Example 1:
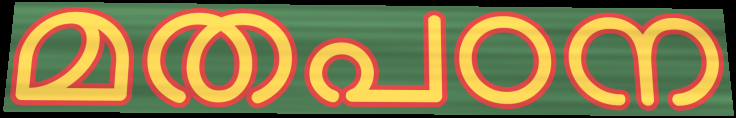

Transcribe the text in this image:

മതപഠന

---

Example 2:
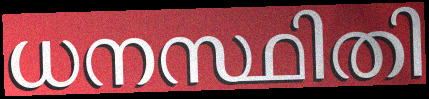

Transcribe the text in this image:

ധനസ്ഥിതി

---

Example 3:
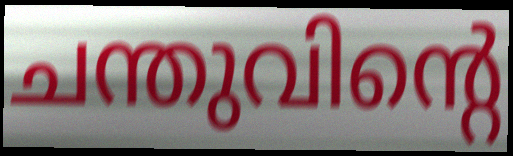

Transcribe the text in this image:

ചന്തുവിന്റെ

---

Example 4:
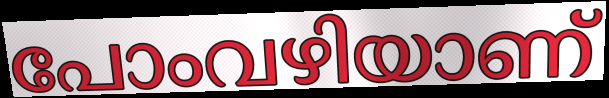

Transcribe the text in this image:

പോംവഴിയാണ്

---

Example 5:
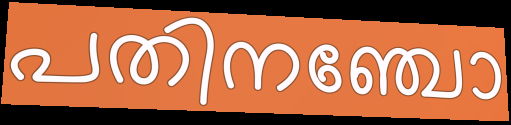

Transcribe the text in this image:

പതിനഞ്ചോ